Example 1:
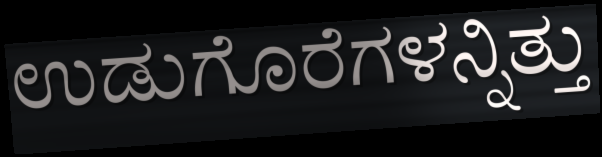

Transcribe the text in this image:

ಉಡುಗೊರೆಗಳನ್ನಿತ್ತು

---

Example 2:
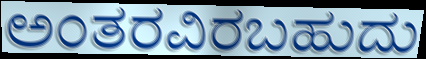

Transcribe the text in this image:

ಅಂತರವಿರಬಹುದು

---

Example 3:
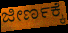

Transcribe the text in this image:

ಜೀರ್ಣಕ್ಕೆ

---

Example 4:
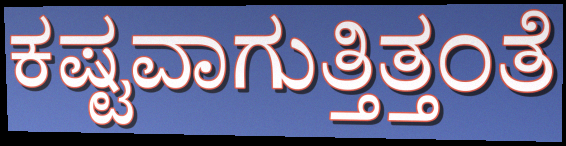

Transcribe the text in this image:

ಕಷ್ಟವಾಗುತ್ತಿತ್ತಂತೆ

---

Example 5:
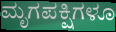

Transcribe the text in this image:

ಮೃಗಪಕ್ಷಿಗಳೂ